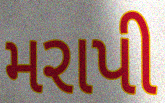
મરાપી